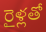
రైళ్లతో